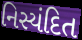
નિસ્યંદિત